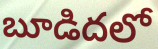
బూడిదలో